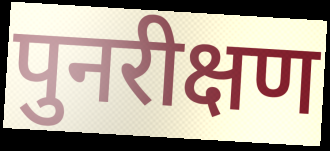
पुनरीक्षण